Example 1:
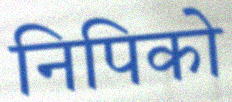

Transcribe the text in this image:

निपिको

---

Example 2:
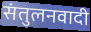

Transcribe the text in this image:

संतुलनवादी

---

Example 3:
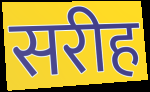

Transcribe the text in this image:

सरीह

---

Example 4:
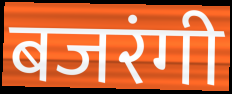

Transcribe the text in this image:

बजरंगी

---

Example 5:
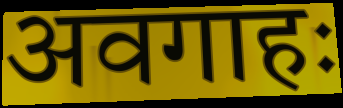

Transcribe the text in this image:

अवगाहः